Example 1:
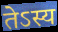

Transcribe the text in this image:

तेऽस्य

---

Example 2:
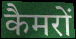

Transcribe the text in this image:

कैमरों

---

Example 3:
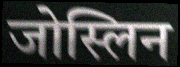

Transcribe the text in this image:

जोस्लिन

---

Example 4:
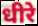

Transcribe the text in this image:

धीरे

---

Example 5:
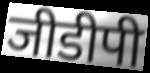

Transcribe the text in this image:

जीडीपी